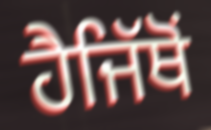
ਹੈਜਿੱਥੋਂ